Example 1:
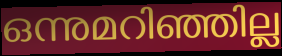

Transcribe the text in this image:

ഒന്നുമറിഞ്ഞില്ല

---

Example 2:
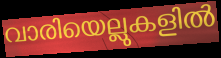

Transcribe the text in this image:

വാരിയെല്ലുകളിൽ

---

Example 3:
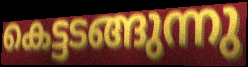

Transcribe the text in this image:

കെട്ടടങ്ങുന്നു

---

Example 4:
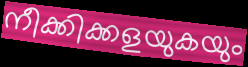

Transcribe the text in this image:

നീക്കിക്കളയുകയും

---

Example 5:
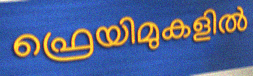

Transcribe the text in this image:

ഫ്രെയിമുകളിൽ